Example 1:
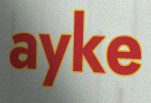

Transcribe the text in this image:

ayke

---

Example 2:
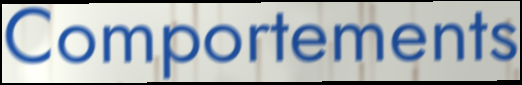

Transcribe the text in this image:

Comportements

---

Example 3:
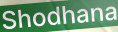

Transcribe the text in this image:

Shodhana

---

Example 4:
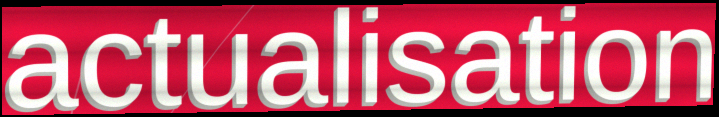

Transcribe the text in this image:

actualisation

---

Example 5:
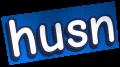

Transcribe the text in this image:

husn